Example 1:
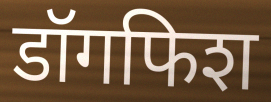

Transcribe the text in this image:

डॉगफिश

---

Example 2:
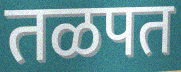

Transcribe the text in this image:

तळपत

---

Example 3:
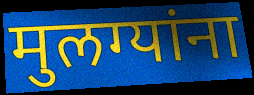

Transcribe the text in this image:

मुलग्यांना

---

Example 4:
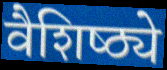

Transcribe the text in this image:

वैशिष्ठ्ये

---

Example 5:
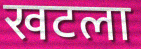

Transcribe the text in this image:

खटला